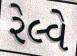
રેલ્વે